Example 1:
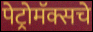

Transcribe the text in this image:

पेट्रोमॅक्सचे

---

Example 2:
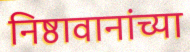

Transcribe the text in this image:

निष्ठावानांच्या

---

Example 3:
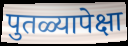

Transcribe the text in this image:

पुतळ्यापेक्षा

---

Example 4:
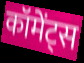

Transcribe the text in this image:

कॉमेंट्स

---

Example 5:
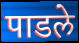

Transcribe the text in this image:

पाडले